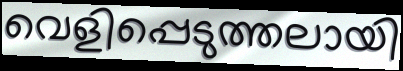
വെളിപ്പെടുത്തലായി